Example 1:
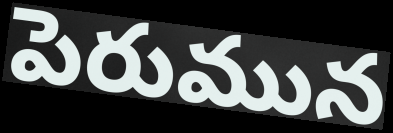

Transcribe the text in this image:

పెరుమున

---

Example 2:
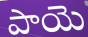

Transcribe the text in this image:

పాయె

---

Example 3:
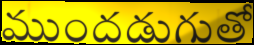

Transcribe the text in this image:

ముందడుగుతో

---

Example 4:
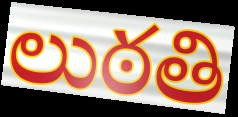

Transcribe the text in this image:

లుఠతి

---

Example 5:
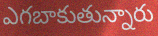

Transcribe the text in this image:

ఎగబాకుతున్నారు